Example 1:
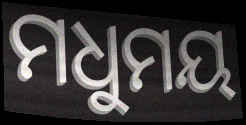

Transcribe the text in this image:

ମଧୁମୟ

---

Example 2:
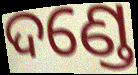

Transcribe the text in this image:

ଦଣ୍ଡେ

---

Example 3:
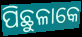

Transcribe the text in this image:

ପିଛୁଳାକେ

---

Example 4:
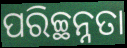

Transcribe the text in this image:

ପରିଚ୍ଛନ୍ନତା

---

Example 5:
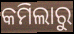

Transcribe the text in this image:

କମିଲାରୁ